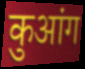
कुआंग